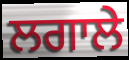
ਲਗਾਲੇ